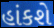
હાંકશે